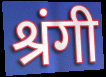
श्रंगी